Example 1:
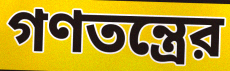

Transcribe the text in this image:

গণতন্ত্রের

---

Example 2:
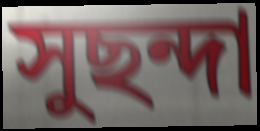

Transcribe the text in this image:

সুছন্দা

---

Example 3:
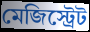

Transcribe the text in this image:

মেজিস্ট্রেট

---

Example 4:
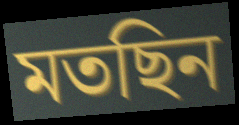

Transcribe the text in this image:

মতছিন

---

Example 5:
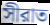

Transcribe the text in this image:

সীরাত